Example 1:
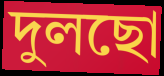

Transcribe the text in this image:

দুলছো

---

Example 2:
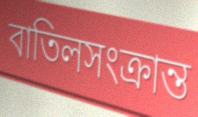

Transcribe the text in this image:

বাতিলসংক্রান্ত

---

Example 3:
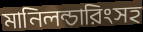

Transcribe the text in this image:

মানিলন্ডারিংসহ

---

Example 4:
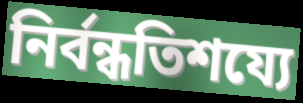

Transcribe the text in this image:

নির্বন্ধতিশয্যে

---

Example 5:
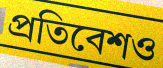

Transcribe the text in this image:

প্রতিবেশও